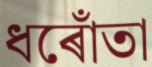
ধৰোঁতা